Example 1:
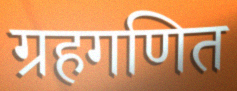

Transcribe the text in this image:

ग्रहगणित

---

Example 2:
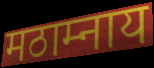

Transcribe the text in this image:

मठाम्नाय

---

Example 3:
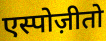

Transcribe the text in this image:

एस्पोज़ीतो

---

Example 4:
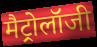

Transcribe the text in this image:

मैट्रोलॉजी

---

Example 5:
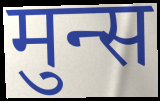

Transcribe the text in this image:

मुन्स